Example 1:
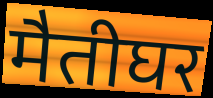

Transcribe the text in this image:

मैतीघर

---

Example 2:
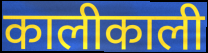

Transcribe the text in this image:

कालीकाली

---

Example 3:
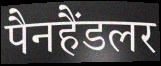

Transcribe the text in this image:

पैनहैंडलर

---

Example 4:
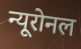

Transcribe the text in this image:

न्यूरोनल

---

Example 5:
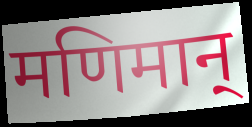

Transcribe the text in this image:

मणिमान्